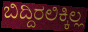
ಬಿದ್ದಿರಲಿಕ್ಕಿಲ್ಲ